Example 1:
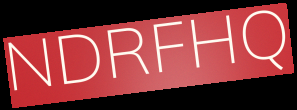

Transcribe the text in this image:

NDRFHQ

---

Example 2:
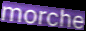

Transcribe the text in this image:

morche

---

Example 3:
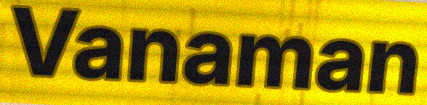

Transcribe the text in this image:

Vanaman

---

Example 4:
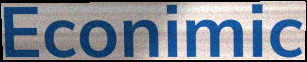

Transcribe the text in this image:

Econimic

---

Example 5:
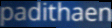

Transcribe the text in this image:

padithaen